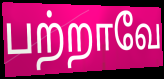
பற்றாவே